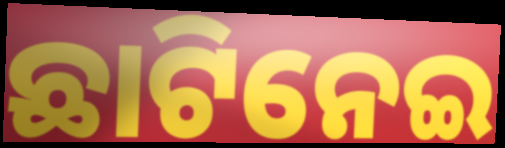
ଛାଟିନେଇ